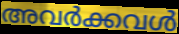
അവർക്കവൾ